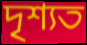
দৃশ্যত